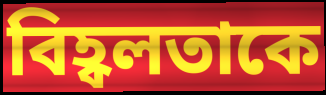
বিহ্বলতাকে